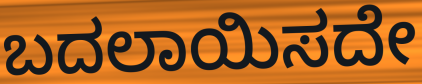
ಬದಲಾಯಿಸದೇ